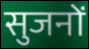
सुजनों